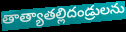
తాత్యాతల్లిదండ్రులను